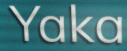
Yaka